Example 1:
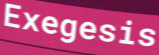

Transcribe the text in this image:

Exegesis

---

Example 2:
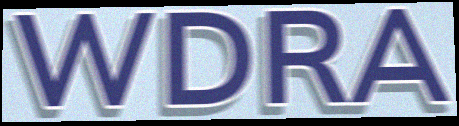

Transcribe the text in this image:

WDRA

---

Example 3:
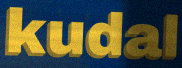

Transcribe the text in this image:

kudal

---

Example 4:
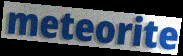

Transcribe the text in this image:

meteorite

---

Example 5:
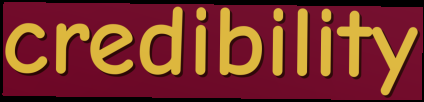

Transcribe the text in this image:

credibility